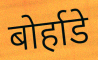
बोर्हाडे